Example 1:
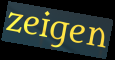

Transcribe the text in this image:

zeigen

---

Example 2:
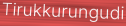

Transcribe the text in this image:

Tirukkurungudi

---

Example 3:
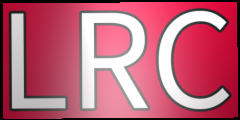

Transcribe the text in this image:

LRC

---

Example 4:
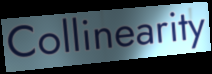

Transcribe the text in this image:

Collinearity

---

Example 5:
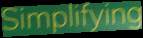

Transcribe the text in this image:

Simplifying